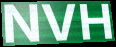
NVH